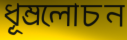
ধূম্রলোচন